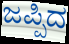
ಜಪ್ಪಿದ